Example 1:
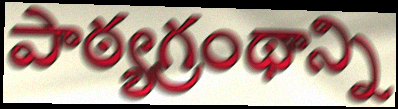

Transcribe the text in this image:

పాఠ్యగ్రంథాన్ని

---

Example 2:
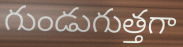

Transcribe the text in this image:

గుండుగుత్తగా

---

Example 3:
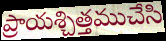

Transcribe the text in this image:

ప్రాయశ్చిత్తముచేసి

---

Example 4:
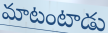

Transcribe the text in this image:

మాటంటాడు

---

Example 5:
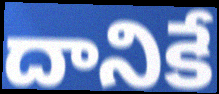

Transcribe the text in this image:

దానికే